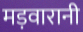
मड़वारानी